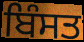
ਬਿੰਸਤ